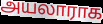
அயலாராக